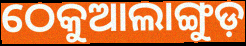
ଠେକୁଆଲାଙ୍ଗୁଡ଼